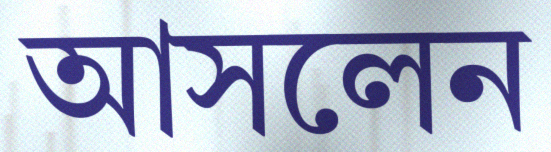
আসলেন